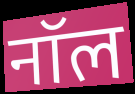
नॉल